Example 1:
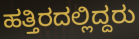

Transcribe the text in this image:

ಹತ್ತಿರದಲ್ಲಿದ್ದರು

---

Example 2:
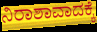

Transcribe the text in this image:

ನಿರಾಶಾವಾದಕ್ಕೆ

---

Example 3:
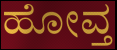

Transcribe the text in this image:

ಹೋವ್ತ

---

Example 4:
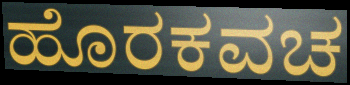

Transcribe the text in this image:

ಹೊರಕವಚ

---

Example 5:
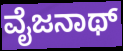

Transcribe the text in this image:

ವೈಜನಾಥ್